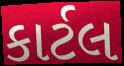
કાર્ટલ